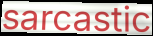
sarcastic